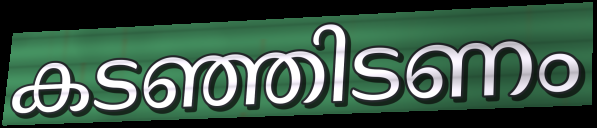
കടഞ്ഞിടണം